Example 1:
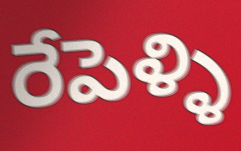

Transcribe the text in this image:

రేపెళ్ళి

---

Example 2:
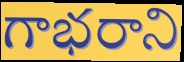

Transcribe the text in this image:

గాభరాని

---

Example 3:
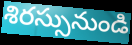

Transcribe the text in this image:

శిరస్సునుండి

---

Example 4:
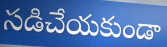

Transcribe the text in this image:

సడిచేయకుండా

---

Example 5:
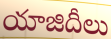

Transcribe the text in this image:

యాజిదీలు